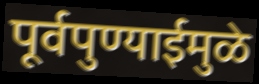
पूर्वपुण्याईमुळे